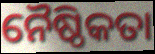
ନୈଷ୍ଠିକତା